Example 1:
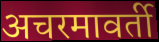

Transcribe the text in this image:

अचरमावर्ती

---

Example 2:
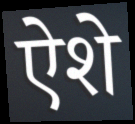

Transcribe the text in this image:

ऐशे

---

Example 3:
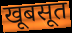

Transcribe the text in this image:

खूबसूत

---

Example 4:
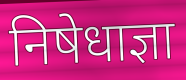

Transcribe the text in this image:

निषेधाज्ञा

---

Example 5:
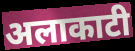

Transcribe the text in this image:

अलाकाटी